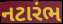
નટારંભ